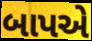
બાપએ